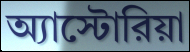
অ্যাস্টোরিয়া